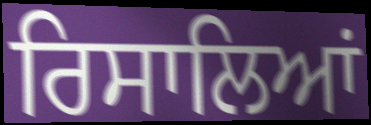
ਰਿਸਾਲਿਆਂ